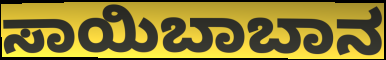
ಸಾಯಿಬಾಬಾನ